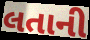
લતાની